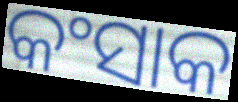
କଂସାକ